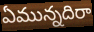
ఏమున్నదిరా